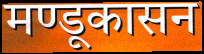
मण्डूकासन